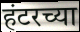
हंटरच्या